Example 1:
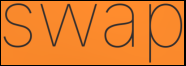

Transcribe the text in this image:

swap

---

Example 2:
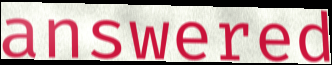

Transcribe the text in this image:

answered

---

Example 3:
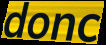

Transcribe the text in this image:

donc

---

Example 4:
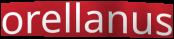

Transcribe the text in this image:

orellanus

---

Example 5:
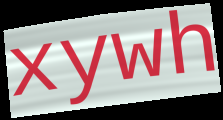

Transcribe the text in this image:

xywh